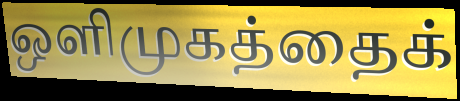
ஒளிமுகத்தைக்